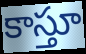
కాస్తూ